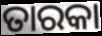
ତାରକା